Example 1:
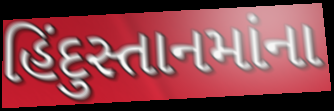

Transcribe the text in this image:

હિંદુસ્તાનમાંના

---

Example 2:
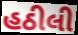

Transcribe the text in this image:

હઠીલી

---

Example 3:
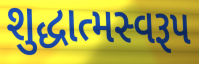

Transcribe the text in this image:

શુદ્ધાત્મસ્વરૂપ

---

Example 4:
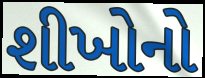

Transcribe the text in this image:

શીખોનો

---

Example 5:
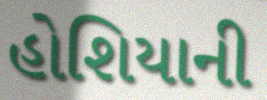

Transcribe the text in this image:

હોશિયાની